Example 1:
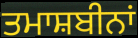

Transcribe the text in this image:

ਤਮਾਸ਼ਬੀਨਾਂ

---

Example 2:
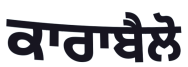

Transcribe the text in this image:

ਕਾਰਾਬੈਲੋ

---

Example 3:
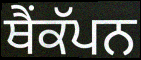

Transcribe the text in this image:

ਥੈਂਕੱਪਨ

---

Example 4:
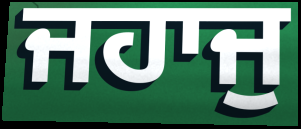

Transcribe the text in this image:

ਜਹਾਜੁ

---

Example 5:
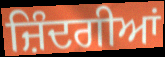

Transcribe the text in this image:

ਜ਼ਿੰਦਗੀਆਂ